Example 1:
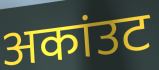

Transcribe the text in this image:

अकांउट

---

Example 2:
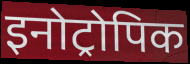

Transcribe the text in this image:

इनोट्रोपिक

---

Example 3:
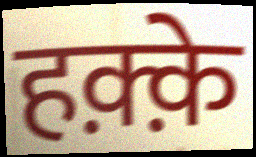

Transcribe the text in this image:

हक़्क़े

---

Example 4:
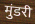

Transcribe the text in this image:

मुंडरी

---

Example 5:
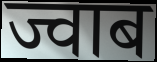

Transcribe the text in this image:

ज्वाब